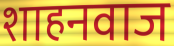
शाहनवाज